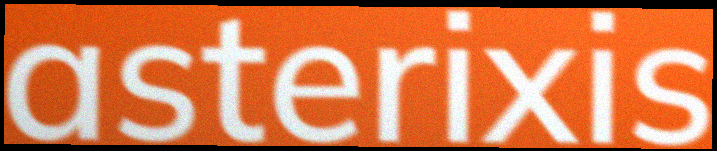
asterixis